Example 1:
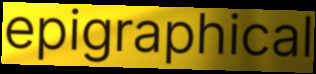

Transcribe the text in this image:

epigraphical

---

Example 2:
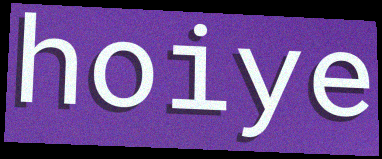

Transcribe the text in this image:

hoiye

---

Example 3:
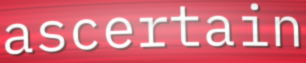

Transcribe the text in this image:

ascertain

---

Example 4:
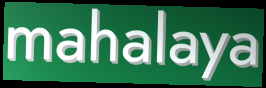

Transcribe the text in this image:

mahalaya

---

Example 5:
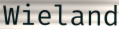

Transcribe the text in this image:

Wieland